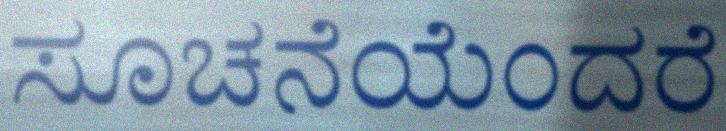
ಸೂಚನೆಯೆಂದರೆ